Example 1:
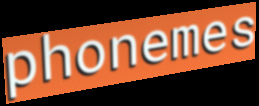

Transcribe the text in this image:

phonemes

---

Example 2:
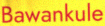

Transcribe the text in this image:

Bawankule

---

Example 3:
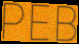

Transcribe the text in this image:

PEB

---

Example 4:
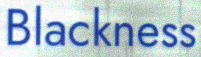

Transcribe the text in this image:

Blackness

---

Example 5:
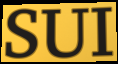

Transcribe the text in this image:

SUI